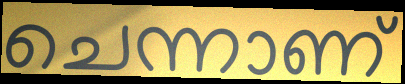
ചെന്നാണ്